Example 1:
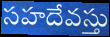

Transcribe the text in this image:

సహదేవస్తు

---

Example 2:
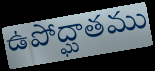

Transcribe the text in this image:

ఉపోద్ఘాతము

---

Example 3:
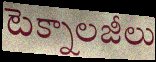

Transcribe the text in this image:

టెక్నాలజీలు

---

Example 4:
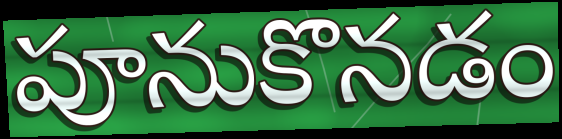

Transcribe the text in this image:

పూనుకొనడం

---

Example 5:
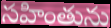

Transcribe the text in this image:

సహింతును